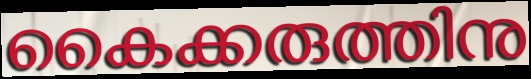
കൈക്കരുത്തിനു